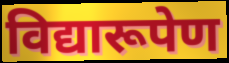
विद्यारूपेण